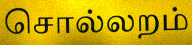
சொல்லறம்